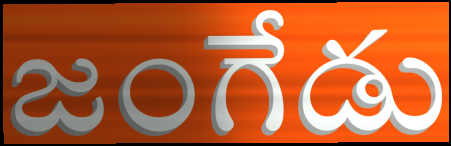
జంగేడు